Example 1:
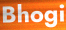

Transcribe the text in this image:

Bhogi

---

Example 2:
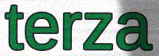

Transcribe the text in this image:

terza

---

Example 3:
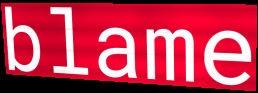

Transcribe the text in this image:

blame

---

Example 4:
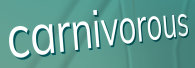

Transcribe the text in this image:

carnivorous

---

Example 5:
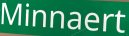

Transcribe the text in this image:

Minnaert